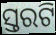
ସ୍ତରଟି